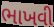
ભાખવી